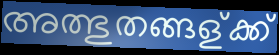
അത്ഭുതങ്ങള്ക്ക്